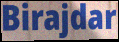
Birajdar